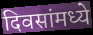
दिवसांमध्ये